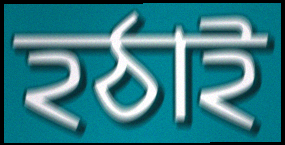
হঠাই